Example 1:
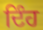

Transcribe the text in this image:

ਦਿੰਹ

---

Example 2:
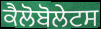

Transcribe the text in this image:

ਕੈਲੋਬੋਲੇਟਸ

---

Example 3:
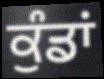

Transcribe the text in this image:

ਕੁੰਡਾਂ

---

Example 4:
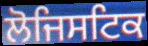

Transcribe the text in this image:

ਲੋਜਿਸਟਿਕ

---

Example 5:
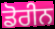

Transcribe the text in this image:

ਡੋਰੀਨ